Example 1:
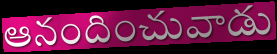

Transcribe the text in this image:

ఆనందించువాడు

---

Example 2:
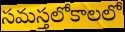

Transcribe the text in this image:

సమస్తలోకాలలో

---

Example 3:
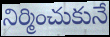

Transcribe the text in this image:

నిర్మించుకునే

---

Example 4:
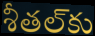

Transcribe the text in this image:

శీతల్‌కు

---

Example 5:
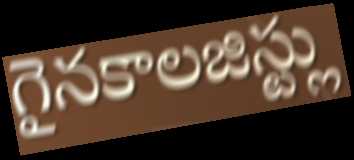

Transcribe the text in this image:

గైనకాలజిస్ట్లు